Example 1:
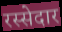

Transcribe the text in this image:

रस्सेदार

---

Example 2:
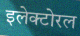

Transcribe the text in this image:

इलेक्टोरल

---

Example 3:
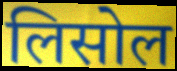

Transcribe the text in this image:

लिसोल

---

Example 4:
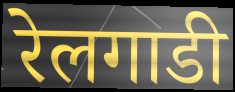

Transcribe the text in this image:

रेलगाडी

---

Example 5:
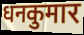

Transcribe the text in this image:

धनकुमार